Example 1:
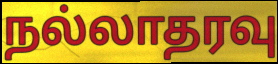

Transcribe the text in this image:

நல்லாதரவு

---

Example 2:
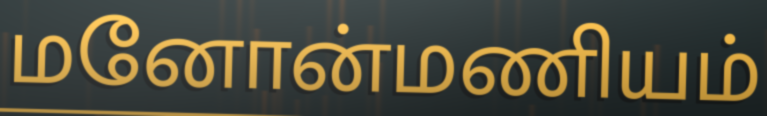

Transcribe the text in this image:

மனோன்மணியம்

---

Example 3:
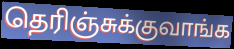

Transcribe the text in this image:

தெரிஞ்சுக்குவாங்க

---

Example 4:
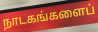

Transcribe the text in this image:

நாடகங்களைப்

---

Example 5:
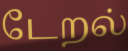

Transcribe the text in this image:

டேறல்